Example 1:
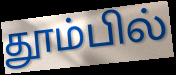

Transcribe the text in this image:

தூம்பில்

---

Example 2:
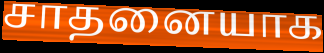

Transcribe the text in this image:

சாதனையாக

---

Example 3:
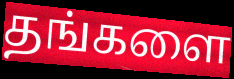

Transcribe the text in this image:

தங்களை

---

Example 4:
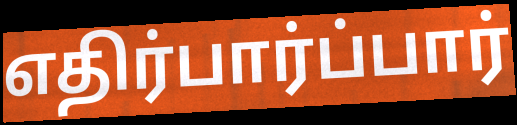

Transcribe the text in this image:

எதிர்பார்ப்பார்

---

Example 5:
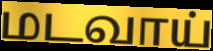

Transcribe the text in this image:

மடவாய்